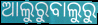
ଆଲୁରୁବାଲୁରୁ